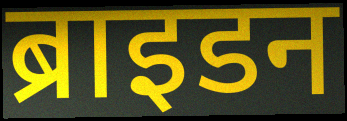
ब्राइडन